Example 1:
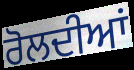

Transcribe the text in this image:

ਰੋਲਦੀਆਂ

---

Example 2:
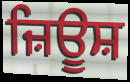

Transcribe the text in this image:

ਜ਼ਿਊਸ਼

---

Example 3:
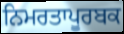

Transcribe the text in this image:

ਨਿਮਰਤਾਪੂਰਬਕ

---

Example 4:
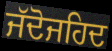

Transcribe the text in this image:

ਜੱਦੋਜਹਿਦ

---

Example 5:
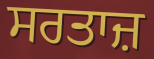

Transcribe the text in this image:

ਸਰਤਾਜ਼